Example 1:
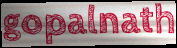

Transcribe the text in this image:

gopalnath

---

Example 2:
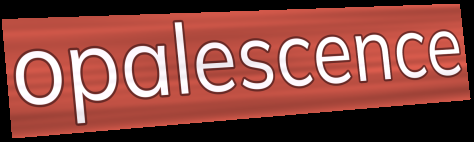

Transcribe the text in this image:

opalescence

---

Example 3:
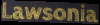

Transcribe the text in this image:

Lawsonia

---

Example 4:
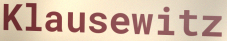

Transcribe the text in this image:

Klausewitz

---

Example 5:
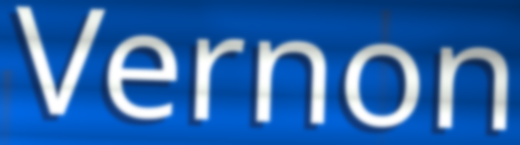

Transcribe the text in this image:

Vernon